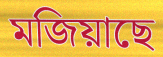
মজিয়াছে